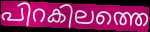
പിറകിലത്തെ